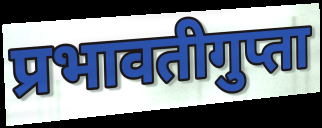
प्रभावतीगुप्ता